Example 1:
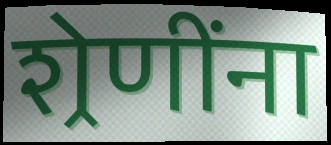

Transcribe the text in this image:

श्रेणींना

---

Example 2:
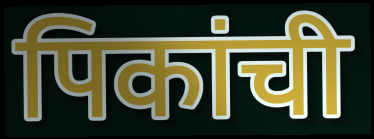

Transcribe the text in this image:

पिकांची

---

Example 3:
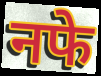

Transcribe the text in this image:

नफे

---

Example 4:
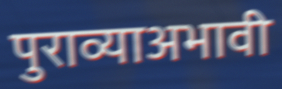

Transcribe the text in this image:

पुराव्याअभावी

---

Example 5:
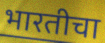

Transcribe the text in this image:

भारतीचा